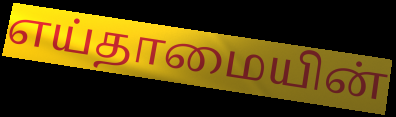
எய்தாமையின்